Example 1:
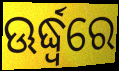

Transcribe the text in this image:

ଊର୍ଦ୍ଧ୍ୱରେ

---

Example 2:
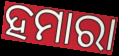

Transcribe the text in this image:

ହମାରା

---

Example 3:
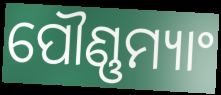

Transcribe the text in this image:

ପୌଣ୍ଣମ୍ୟାଂ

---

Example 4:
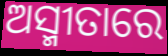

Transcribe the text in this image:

ଅସ୍ମୀତାରେ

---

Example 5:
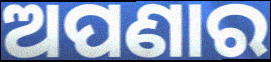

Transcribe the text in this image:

ଅପଣାର